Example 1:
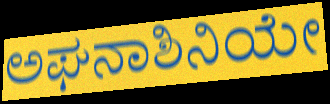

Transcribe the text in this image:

ಅಘನಾಶಿನಿಯೇ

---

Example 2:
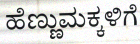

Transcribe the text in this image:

ಹೆಣ್ಣುಮಕ್ಕಳಿಗೆ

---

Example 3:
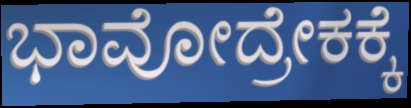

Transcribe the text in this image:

ಭಾವೋದ್ರೇಕಕ್ಕೆ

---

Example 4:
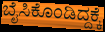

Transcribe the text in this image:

ಬೈಸಿಕೊಂಡಿದ್ದಕ್ಕೆ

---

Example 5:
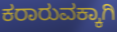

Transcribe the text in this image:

ಕರಾರುವಕ್ಕಾಗಿ